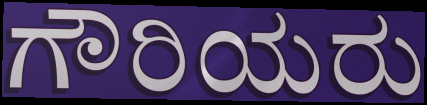
ಗೌರಿಯರು